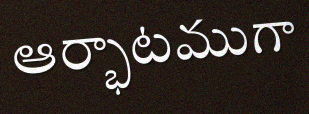
ఆర్భాటముగా